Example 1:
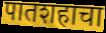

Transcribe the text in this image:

पातशहाचा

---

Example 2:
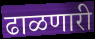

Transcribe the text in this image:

ढाळणारी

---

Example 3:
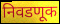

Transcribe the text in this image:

निवडणूक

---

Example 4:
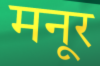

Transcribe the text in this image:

मनूर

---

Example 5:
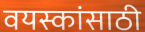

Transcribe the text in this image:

वयस्कांसाठी